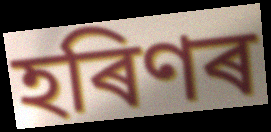
হৰিণৰ